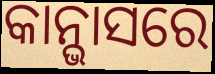
କାନ୍ଭାସରେ